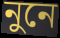
নুনে